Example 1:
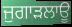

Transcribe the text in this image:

ਜੁਗਾੜਲਾਊ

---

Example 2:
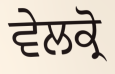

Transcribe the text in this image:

ਵੇਲਕ੍ਰੋ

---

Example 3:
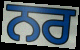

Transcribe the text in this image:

ਨਰ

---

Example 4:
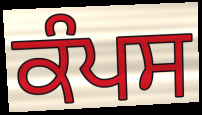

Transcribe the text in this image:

ਕੰਪਸ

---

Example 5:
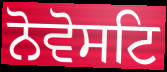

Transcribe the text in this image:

ਨੋਵੋਸਟਿ